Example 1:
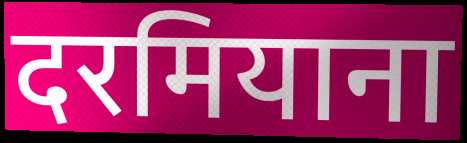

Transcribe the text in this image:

दरमियाना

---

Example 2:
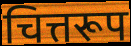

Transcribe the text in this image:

चित्तरूप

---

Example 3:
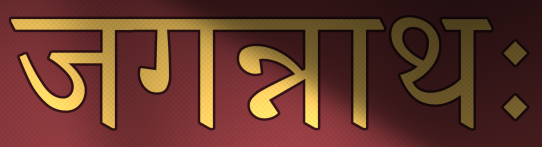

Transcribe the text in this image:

जगन्नाथः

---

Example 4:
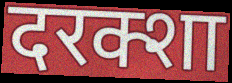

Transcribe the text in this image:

दरक्शा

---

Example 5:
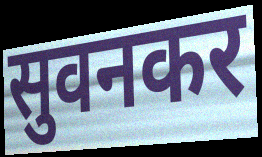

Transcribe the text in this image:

सुवनकर